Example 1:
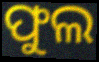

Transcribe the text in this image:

ଫୁଲ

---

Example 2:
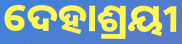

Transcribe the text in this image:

ଦେହାଶ୍ରୟୀ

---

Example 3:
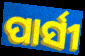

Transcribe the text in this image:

ପାର୍ସୀ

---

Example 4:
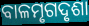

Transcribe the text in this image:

ବାଳମୃଗଦୃଶା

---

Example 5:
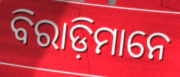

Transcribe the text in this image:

ବିରାଡ଼ିମାନେ